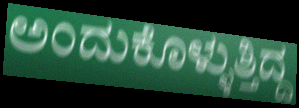
ಅಂದುಕೊಳ್ಳುತ್ತಿದ್ದ